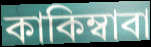
কাকিম্বাবা